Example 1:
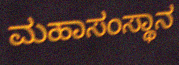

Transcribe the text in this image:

ಮಹಾಸಂಸ್ಥಾನ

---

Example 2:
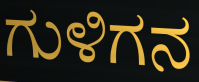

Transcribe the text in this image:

ಗುಳಿಗನ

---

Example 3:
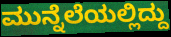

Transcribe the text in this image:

ಮುನ್ನೆಲೆಯಲ್ಲಿದ್ದು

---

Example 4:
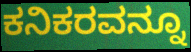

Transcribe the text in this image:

ಕನಿಕರವನ್ನೂ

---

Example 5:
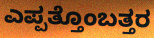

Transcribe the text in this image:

ಎಪ್ಪತ್ತೊಂಬತ್ತರ